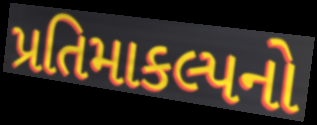
પ્રતિમાકલ્પનો